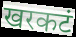
खरकटं